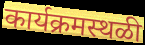
कार्यक्रमस्थळी